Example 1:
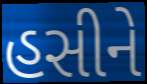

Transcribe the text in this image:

હસીને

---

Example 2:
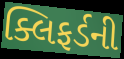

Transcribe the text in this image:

ક્લિફર્ડની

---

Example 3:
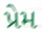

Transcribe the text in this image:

પ્રેમ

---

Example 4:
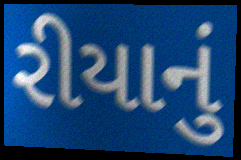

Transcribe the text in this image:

રીયાનું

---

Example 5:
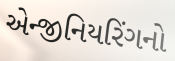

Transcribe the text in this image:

એન્જીનિયરિંગનો